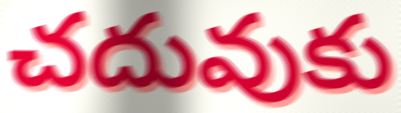
చదువుకు